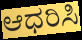
ಆಧರಿಸಿ